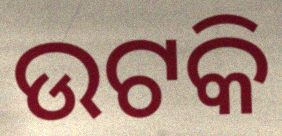
ଉଟକି